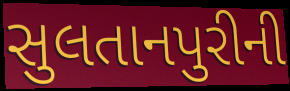
સુલતાનપુરીની